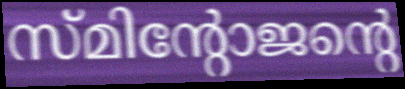
സ്മിന്റോജന്റെ